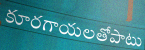
కూరగాయలతోపాటు